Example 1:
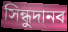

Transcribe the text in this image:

সিন্ধুদানব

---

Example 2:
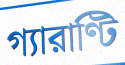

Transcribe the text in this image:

গ্যারাণ্টি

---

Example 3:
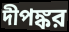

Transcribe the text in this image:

দীপঙ্কর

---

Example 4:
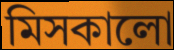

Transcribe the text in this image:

মিসকালো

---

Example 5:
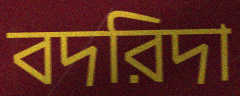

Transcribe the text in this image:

বদরিদা